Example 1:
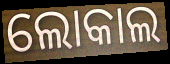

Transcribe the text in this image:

ଲୋକାଲ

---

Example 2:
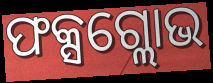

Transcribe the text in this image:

ଫକ୍ସଗ୍ଲୋଭ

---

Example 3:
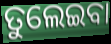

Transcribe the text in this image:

ତୁଲେଇବା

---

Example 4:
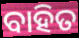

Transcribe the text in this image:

ବାହିତ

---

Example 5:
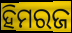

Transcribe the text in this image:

ହିମରଜ